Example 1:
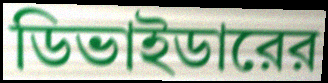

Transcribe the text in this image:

ডিভাইডারের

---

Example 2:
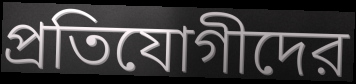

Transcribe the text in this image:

প্রতিযোগীদের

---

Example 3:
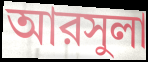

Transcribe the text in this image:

আরসুলা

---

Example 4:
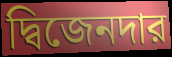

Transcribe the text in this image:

দ্বিজেনদার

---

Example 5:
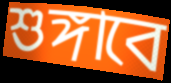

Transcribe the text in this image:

শুঙ্গাবে